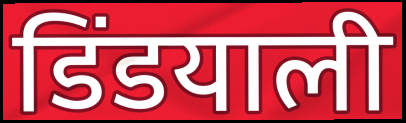
डिंडयाली